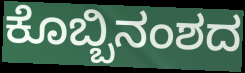
ಕೊಬ್ಬಿನಂಶದ